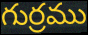
గుర్రము